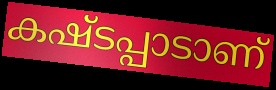
കഷ്ടപ്പാടാണ്